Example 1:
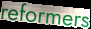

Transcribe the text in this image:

reformers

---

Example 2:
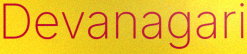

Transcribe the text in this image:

Devanagari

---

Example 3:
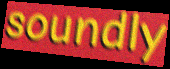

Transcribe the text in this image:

soundly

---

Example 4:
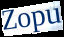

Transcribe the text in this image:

Zopu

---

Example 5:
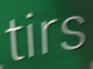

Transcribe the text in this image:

tirs